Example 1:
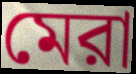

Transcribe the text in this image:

মেরা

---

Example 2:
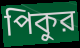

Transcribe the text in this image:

পিকুর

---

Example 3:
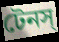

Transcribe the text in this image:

টেনস্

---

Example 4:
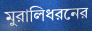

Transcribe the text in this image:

মুরালিধরনের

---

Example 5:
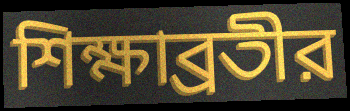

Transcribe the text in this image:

শিক্ষাব্রতীর